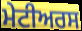
ਮੇਟੀਅਰਸ